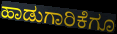
ಹಾಡುಗಾರಿಕೆಗೂ